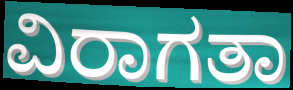
ವಿರಾಗತಾ